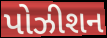
પોઝીશન